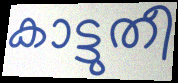
കാട്ടുതീ